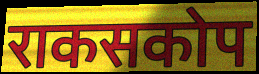
राकसकोप